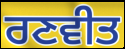
ਰਣਵੀਤ